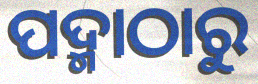
ପଦ୍ମାଠାରୁ